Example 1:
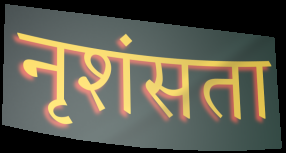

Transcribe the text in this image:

नृशंसता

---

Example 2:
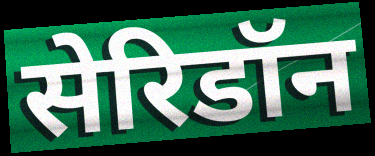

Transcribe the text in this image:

सेरिडॉन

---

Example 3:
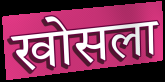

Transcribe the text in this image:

खोसला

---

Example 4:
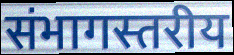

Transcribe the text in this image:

संभागस्तरीय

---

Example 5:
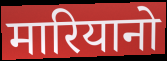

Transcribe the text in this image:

मारियानो